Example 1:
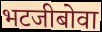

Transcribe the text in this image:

भटजीबोवा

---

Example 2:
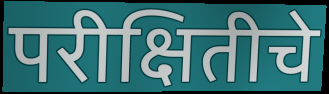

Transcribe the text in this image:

परीक्षितीचे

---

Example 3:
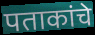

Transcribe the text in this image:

पताकांचे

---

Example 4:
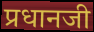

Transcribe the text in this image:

प्रधानजी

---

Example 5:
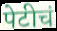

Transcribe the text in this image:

पेटीचं